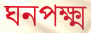
ঘনপক্ষ্ম